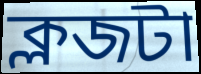
ক্লজটা